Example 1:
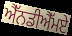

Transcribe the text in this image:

ਐੱਨਡੀਐੱਮਏ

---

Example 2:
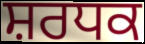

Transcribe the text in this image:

ਸ਼ਰਧਕ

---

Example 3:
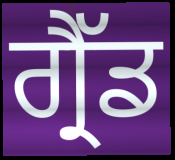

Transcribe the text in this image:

ਗ੍ਰੈੱਡ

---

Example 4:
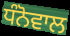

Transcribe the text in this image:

ਧੰਨੋਵਾਲ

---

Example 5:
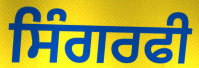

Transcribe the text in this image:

ਸਿੰਗਰਫੀ